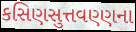
કસિણસુત્તવણ્ણના